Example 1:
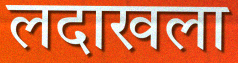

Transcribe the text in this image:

लदाखला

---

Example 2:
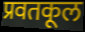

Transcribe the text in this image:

प्रवतकूल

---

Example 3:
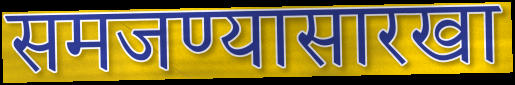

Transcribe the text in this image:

समजण्यासारखा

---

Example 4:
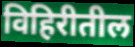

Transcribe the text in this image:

विहिरीतील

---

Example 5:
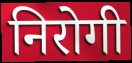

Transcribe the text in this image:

निरोगी